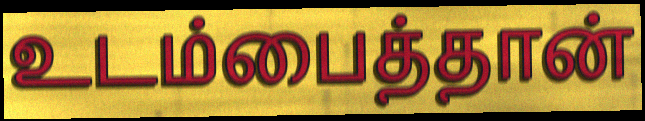
உடம்பைத்தான்